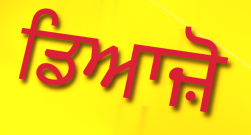
ਡਿਆਜ਼ੋ